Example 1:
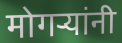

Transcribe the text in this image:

मोगऱ्यांनी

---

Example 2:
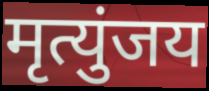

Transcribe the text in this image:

मृत्युंजय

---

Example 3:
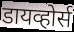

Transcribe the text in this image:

डायव्होर्स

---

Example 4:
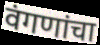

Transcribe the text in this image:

वंगणांचा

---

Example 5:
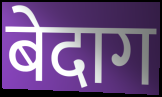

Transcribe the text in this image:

बेदाग